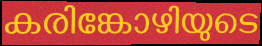
കരിങ്കോഴിയുടെ